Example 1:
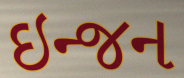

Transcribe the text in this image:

ઇન્જન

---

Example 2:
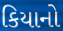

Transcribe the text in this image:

કિયાનો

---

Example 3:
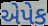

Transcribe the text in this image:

એપેક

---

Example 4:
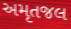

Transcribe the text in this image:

અમૃતજલ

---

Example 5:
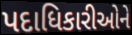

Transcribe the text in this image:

પદાધિકારીઓને